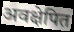
अवक्षेपित